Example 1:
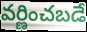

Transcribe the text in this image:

వర్ణించబడే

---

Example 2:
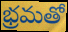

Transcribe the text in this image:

భ్రమతో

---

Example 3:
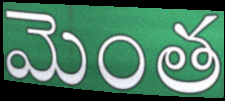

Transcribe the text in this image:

మెంత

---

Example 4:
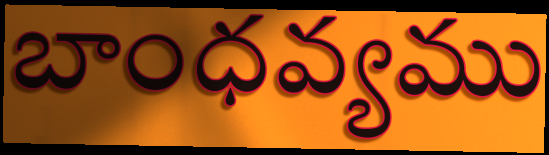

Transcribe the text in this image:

బాంధవ్యము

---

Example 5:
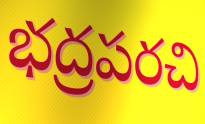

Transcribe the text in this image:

భద్రపరచి